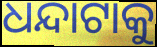
ଧନ୍ଦାଟାକୁ